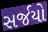
સર્જયો